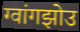
ग्वांगझोउ